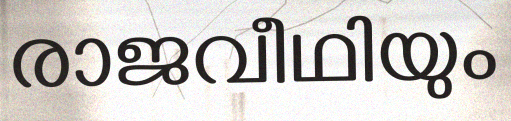
രാജവീഥിയും